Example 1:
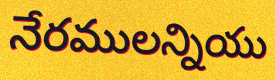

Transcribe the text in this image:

నేరములన్నియు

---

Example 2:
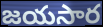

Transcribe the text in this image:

జయసార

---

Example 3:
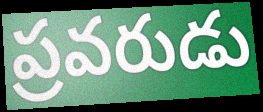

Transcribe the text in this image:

ప్రవరుడు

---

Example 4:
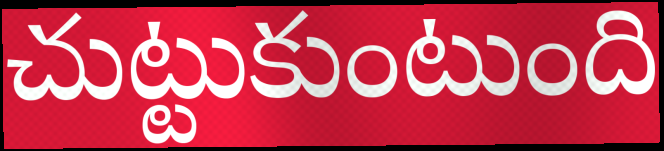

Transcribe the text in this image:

చుట్టుకుంటుంది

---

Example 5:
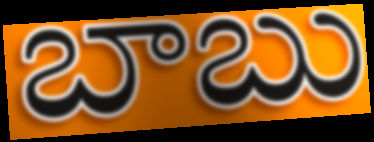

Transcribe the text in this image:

బాబు